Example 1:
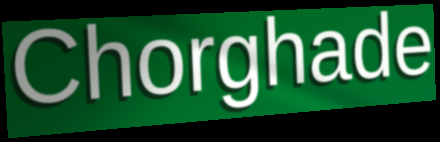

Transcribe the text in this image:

Chorghade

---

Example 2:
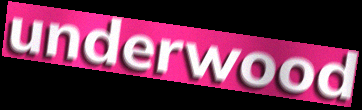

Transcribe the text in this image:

underwood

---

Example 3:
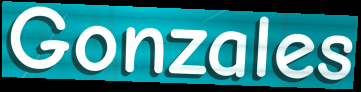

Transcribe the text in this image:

Gonzales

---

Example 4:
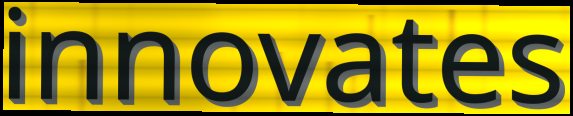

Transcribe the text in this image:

innovates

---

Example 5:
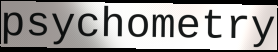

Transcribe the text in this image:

psychometry